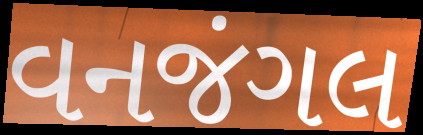
વનજંગલ